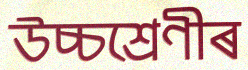
উচ্চশ্ৰেণীৰ